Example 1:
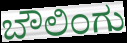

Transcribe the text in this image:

ಬೌಲಿಂಗು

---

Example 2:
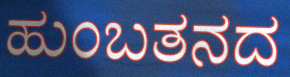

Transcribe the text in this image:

ಹುಂಬತನದ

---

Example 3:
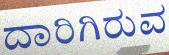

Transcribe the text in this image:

ದಾರಿಗಿರುವ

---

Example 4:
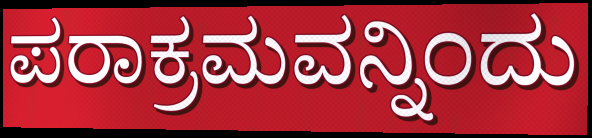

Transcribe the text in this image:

ಪರಾಕ್ರಮವನ್ನಿಂದು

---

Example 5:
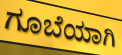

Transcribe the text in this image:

ಗೂಬೆಯಾಗಿ